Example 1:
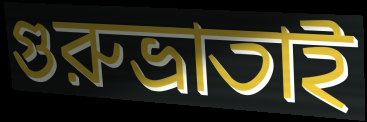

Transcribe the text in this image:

গুৰুভ্ৰাতাই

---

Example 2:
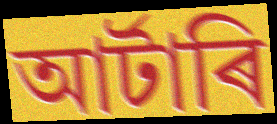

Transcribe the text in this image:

আৰ্টাৰি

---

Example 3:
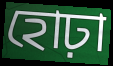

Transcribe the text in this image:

হোঢ়া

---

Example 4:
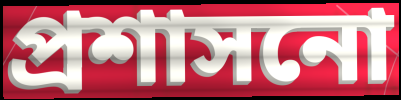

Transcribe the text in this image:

প্ৰশাসনো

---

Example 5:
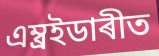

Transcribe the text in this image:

এম্ব্ৰইডাৰীত